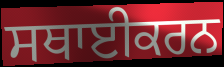
ਸਥਾਈਕਰਨ